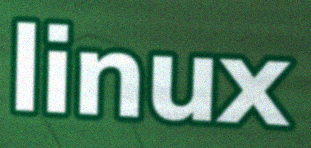
linux